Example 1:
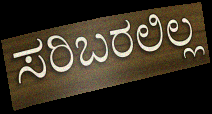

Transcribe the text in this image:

ಸರಿಬರಲಿಲ್ಲ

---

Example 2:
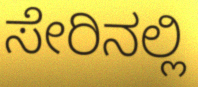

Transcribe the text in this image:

ಸೇರಿನಲ್ಲಿ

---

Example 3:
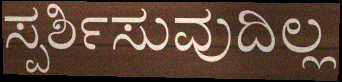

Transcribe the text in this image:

ಸ್ಪರ್ಶಿಸುವುದಿಲ್ಲ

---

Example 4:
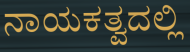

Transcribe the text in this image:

ನಾಯಕತ್ವದಲ್ಲಿ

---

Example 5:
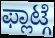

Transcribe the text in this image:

ಫ್ಲಾಟ್ಗೆ